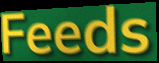
Feeds